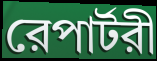
রেপার্টরী